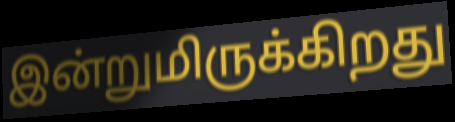
இன்றுமிருக்கிறது